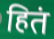
हितं